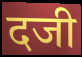
दजी